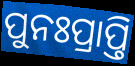
ପୁନଃପ୍ରାପ୍ତି